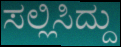
ಸಲ್ಲಿಸಿದ್ದು